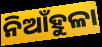
ନିଆଁହୁଳା